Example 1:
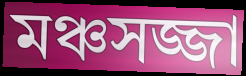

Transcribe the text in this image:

মঞ্চসজ্জা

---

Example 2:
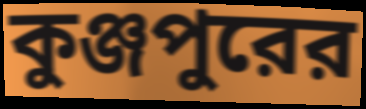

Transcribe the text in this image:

কুঞ্জপুরের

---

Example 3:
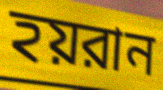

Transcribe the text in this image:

হয়রান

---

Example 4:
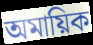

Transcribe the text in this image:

অমায়িক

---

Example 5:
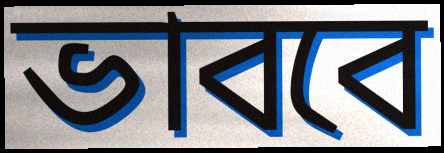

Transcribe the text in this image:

ভাববে